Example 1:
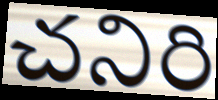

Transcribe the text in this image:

చనిరి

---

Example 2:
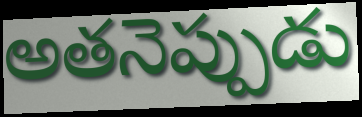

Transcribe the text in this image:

అతనెప్పుడు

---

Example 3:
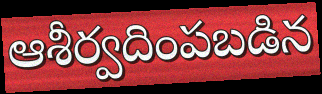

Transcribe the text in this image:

ఆశీర్వదింపబడిన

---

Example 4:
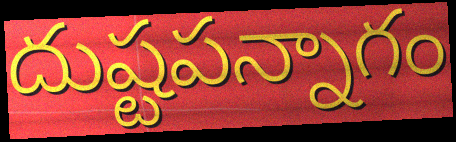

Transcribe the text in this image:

దుష్టపన్నాగం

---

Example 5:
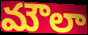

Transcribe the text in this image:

మౌలా